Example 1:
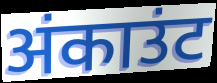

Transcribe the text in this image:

अंकाउंट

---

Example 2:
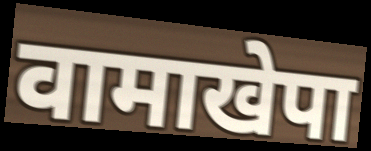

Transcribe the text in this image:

वामाखेपा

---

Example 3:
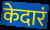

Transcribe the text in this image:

केदारं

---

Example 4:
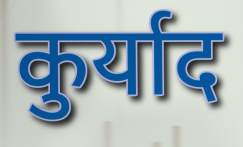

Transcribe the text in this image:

कुर्याद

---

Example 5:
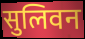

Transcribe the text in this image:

सुलिवन